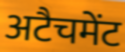
अटैचमेंट